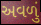
અવળું